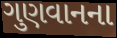
ગુણવાનના